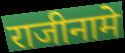
राजीनामे